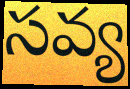
సవ్య